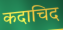
कदाचिद